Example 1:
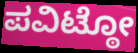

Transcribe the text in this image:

ಪವಿಟ್ಠೋ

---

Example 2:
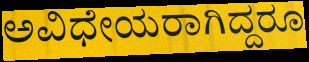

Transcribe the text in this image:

ಅವಿಧೇಯರಾಗಿದ್ದರೂ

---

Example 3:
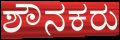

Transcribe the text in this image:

ಶೌನಕರು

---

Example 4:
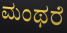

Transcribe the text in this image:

ಮಂಥರೆ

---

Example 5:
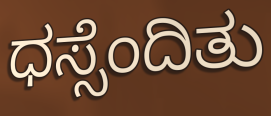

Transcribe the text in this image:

ಧಸ್ಸೆಂದಿತು